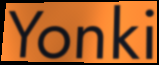
Yonki